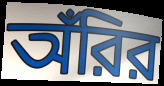
অঁরির